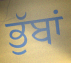
ਭੁੱਬਾਂ